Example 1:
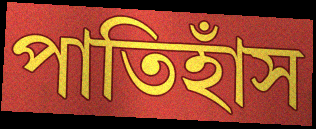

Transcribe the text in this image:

পাতিহাঁস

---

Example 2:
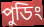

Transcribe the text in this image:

পুডিং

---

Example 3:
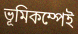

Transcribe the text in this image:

ভূমিকম্পেই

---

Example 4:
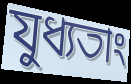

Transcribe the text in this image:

যুধ্যতাং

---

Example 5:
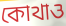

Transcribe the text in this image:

কোথাও